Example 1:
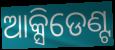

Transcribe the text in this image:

ଆକ୍ସିଡେଣ୍ଟ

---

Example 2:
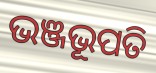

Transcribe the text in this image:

ଭଞ୍ଜଭୂପତି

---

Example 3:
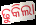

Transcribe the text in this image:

ଢୁକିଲା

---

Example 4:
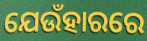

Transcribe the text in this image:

ଯେଉଁହାରରେ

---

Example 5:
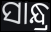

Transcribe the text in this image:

ସାନ୍ଧ୍ର